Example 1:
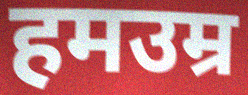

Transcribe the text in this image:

हमउम्र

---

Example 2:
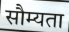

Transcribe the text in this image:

सौम्यता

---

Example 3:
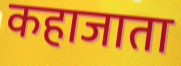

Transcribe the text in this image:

कहाजाता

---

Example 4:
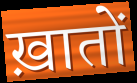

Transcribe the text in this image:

ख़ातों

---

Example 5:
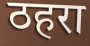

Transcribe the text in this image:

ठहरा